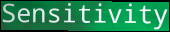
Sensitivity